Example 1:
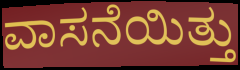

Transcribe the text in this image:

ವಾಸನೆಯಿತ್ತು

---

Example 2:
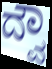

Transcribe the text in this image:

ದ್ವೌ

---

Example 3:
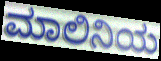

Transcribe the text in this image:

ಮಾಲಿನಿಯ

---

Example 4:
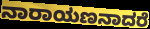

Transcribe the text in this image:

ನಾರಾಯಣನಾದರೆ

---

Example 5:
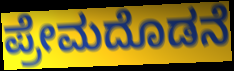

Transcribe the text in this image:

ಪ್ರೇಮದೊಡನೆ